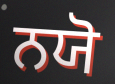
ਨਯੋ